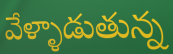
వేళ్ళాడుతున్న